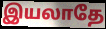
இயலாதே